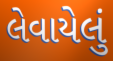
લેવાયેલું